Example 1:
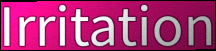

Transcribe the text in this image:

Irritation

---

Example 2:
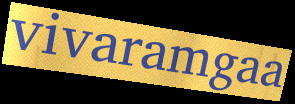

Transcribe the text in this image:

vivaramgaa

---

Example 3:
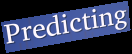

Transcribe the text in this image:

Predicting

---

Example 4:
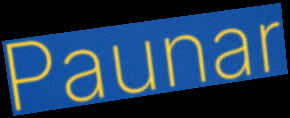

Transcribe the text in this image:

Paunar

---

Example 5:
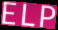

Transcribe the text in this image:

ELP